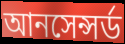
আনসেন্সর্ড